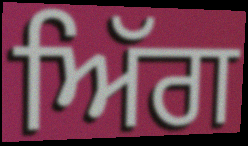
ਅਿੱਗ